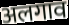
अलगाव